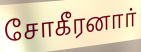
சோகீரனார்